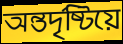
অন্তৰ্দৃষ্টিয়ে